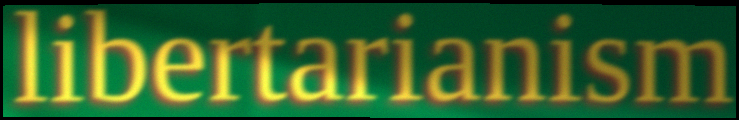
libertarianism